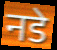
नडे